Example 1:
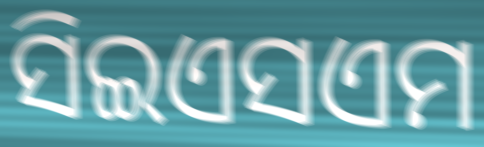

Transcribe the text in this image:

ସିଇଏସଏମ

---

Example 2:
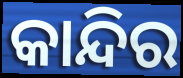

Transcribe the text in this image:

କାନ୍ଦିର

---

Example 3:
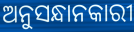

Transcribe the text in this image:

ଅନୁସନ୍ଧାନକାରୀ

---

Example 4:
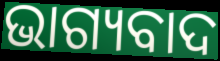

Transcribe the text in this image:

ଭାଗ୍ୟବାଦ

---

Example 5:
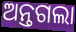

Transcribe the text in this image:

ଅନ୍ତଗଲା